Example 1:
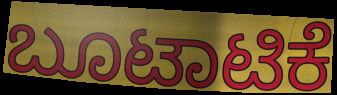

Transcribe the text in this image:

ಬೂಟಾಟಿಕೆ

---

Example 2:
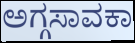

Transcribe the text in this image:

ಅಗ್ಗಸಾವಕಾ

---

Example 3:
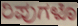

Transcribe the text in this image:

ರಿಪುಗಳೊ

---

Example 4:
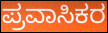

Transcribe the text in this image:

ಪ್ರವಾಸಿಕರ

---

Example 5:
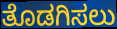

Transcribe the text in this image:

ತೊಡಗಿಸಲು